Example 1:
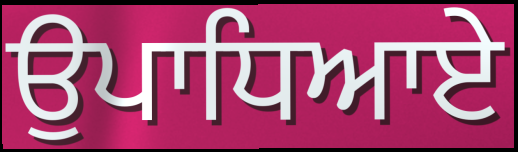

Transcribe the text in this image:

ਉਪਾਧਿਆਏ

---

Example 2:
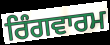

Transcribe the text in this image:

ਰਿੰਗਵਾਰਮ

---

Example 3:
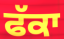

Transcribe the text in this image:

ਫੱਕਾ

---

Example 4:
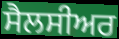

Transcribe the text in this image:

ਸੈਲਸੀਅਰ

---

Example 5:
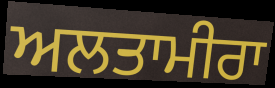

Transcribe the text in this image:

ਅਲਤਾਮੀਰਾ